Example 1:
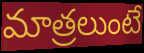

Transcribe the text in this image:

మాత్రలుంటే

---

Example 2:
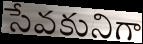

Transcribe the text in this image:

సేవకునిగా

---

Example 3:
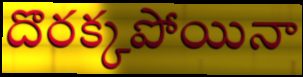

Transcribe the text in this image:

దొరక్కపోయినా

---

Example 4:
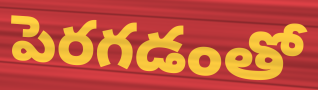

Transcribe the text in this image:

పెరగడంతో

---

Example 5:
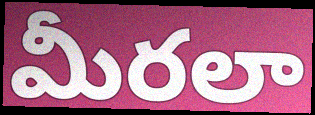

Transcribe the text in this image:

మీరలా